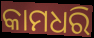
କାମଧରି